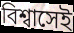
বিশ্বাসেই